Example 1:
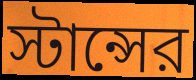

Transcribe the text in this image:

স্টান্সের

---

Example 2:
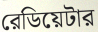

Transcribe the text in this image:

রেডিয়েটার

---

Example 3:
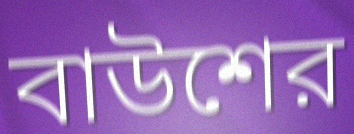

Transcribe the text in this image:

বাউশের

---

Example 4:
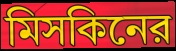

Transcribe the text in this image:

মিসকিনের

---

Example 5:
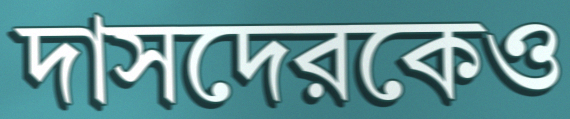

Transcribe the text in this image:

দাসদেরকেও